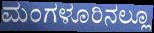
ಮಂಗಳೂರಿನಲ್ಲೂ